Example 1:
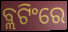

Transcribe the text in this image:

ବ୍ଲଟିଂରେ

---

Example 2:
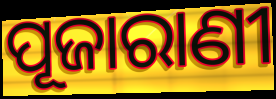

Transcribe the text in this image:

ପୂଜାରାଣୀ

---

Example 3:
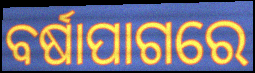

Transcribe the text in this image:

ବର୍ଷାପାଗରେ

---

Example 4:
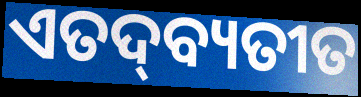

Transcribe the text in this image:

ଏତଦ୍‌ବ୍ୟତୀତ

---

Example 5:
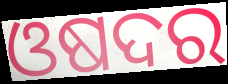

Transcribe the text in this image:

ଓଷଦର